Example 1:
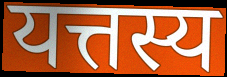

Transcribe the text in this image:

यत्तस्य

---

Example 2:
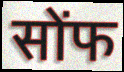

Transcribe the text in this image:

सोंफ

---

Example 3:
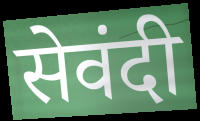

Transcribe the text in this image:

सेवंदी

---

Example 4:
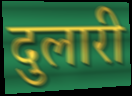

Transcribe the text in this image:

दुलारी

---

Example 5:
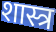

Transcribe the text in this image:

शास्त्र